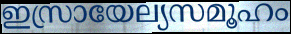
ഇസ്രായേല്യസമൂഹം